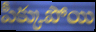
పీక్కుపోయి